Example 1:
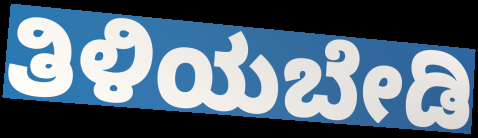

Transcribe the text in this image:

ತಿಳಿಯಬೇಡಿ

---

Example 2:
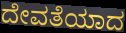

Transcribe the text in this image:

ದೇವತೆಯಾದ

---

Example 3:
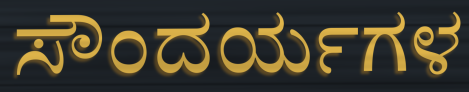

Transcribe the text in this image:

ಸೌಂದರ್ಯಗಳ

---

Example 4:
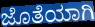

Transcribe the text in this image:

ಜೊತೆಯಾಗಿ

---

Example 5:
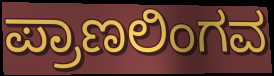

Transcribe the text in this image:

ಪ್ರಾಣಲಿಂಗವ